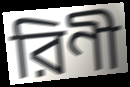
রিণী